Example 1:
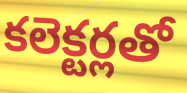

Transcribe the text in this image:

కలెక్టర్లతో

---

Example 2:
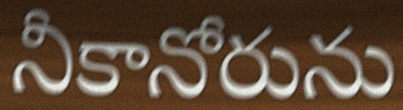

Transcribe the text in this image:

నీకానోరును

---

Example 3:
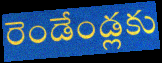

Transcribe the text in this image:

రెండేండ్లకు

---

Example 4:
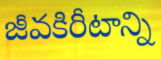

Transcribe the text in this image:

జీవకిరీటాన్ని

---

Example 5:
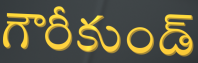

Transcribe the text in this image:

గౌరీకుండ్